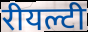
रीयल्टी